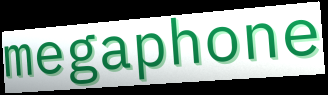
megaphone